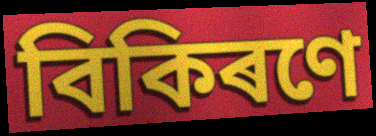
বিকিৰণে